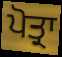
ਪੋਤ੍ਰਾ